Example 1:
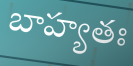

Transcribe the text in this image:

బాహ్యతః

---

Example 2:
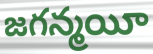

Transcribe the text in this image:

జగన్మయీ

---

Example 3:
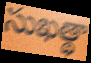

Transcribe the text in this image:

సుఖత్థా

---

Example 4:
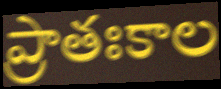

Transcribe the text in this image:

ప్రాతఃకాల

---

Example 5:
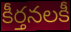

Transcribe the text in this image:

కీర్తనలకీ